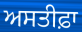
ਅਸਤੀਫ਼ਾ